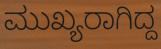
ಮುಖ್ಯರಾಗಿದ್ದ